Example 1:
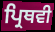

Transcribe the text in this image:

ਪ੍ਰਿਥਵੀ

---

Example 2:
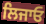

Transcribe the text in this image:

ਲਿਜਾਓ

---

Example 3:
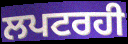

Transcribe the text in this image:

ਲਪਟਰਹੀ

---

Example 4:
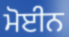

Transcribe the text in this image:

ਮੋਈਨ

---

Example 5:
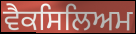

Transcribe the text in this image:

ਵੈਕਸਿਲਿਅਮ